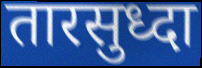
तारसुध्दा